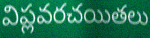
విప్లవరచయితలు